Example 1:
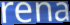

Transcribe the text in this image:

rena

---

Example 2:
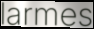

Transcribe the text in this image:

larmes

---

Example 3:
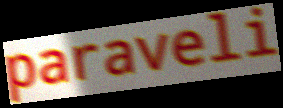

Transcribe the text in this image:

paraveli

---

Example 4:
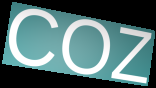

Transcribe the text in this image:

COZ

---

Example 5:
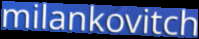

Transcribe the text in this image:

milankovitch